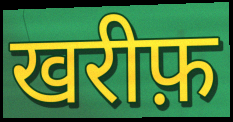
खरीफ़